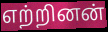
எற்றினன்